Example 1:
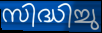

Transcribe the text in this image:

സിദ്ധിച്ചു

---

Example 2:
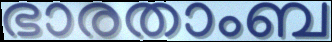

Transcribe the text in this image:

ഭാരതാംബ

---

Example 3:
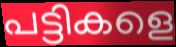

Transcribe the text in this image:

പട്ടികളെ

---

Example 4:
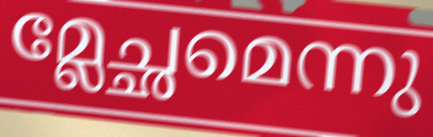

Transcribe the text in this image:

മ്ലേച്ഛമെന്നു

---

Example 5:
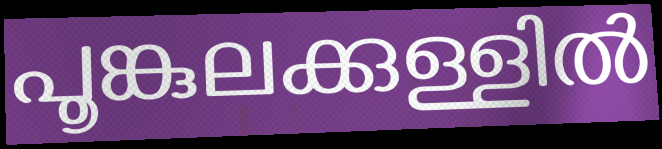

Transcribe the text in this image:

പൂങ്കുലക്കുള്ളിൽ